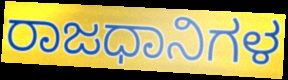
ರಾಜಧಾನಿಗಳ